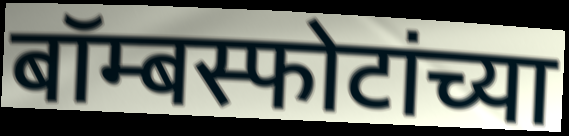
बॉम्बस्फोटांच्या